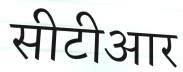
सीटीआर